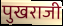
पुखराजी